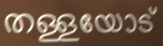
തള്ളയോട്